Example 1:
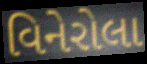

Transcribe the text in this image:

વિનેરોલા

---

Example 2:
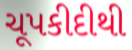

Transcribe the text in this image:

ચૂપકીદીથી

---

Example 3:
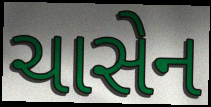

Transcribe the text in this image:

ચાસેન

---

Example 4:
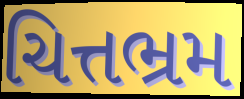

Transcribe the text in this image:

ચિત્તભ્રમ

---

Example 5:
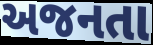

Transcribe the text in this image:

અજનતા